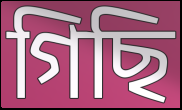
গিছি